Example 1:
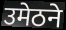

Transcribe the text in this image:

उमेठने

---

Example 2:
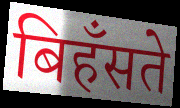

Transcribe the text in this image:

बिहँसते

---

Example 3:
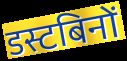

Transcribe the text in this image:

डस्टबिनों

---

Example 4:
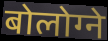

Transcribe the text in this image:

बोलोग्ने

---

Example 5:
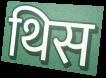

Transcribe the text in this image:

थिस